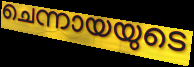
ചെന്നായയുടെ